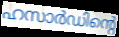
ഹസാർഡിന്റെ